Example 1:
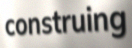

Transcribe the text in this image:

construing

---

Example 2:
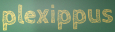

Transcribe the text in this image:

plexippus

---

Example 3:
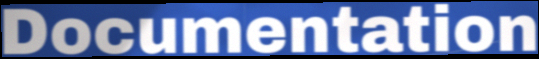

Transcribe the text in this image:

Documentation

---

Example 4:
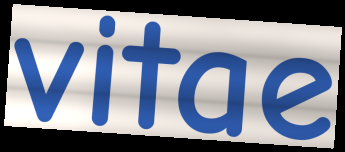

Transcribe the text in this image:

vitae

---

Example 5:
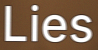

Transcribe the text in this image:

Lies